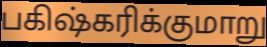
பகிஷ்கரிக்குமாறு